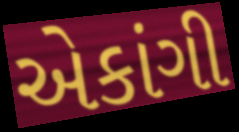
એકાંગી